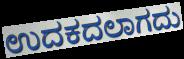
ಉದಕದಲಾಗದು